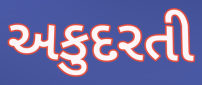
અકુદરતી